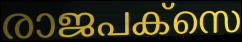
രാജപക്‌സെ